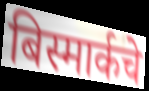
बिस्मार्कचे